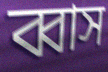
ব্বাস